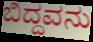
ಬಿದ್ದವನು